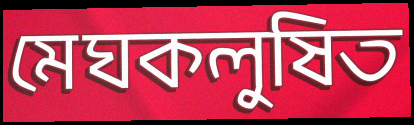
মেঘকলুষিত